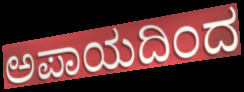
ಅಪಾಯದಿಂದ